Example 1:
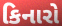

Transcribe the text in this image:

કિનારો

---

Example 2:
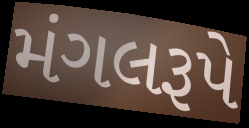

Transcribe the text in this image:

મંગલરૂપે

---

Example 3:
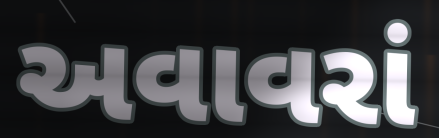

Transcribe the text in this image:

અવાવરાં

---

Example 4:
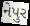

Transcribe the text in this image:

નેપુર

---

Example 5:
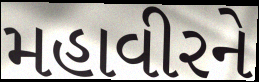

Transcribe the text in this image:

મહાવીરને